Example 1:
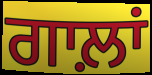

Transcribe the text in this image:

ਗਾਲ਼ਾਂ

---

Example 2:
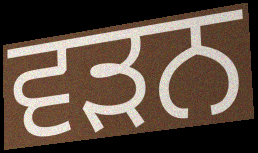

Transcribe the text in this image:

ਵੜਨ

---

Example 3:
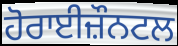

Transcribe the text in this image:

ਹੋਰਾਈਜ਼ੌਨਟਲ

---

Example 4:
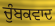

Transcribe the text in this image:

ਚੁੰਬਕਵਾਦ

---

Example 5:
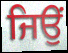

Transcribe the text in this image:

ਜਿਉਂ